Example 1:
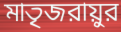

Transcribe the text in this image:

মাতৃজরায়ুর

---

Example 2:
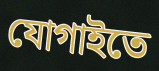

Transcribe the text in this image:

যোগাইতে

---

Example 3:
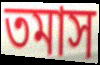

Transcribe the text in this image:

তমাস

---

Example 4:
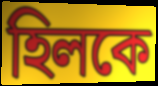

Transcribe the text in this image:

হিলকে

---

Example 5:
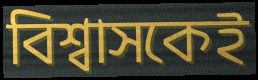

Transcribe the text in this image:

বিশ্বাসকেই